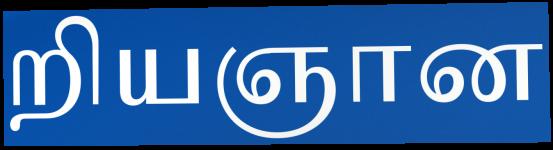
றியஞான